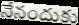
నేనందుకు